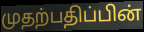
முதற்பதிப்பின்